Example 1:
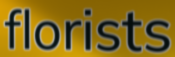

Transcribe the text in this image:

florists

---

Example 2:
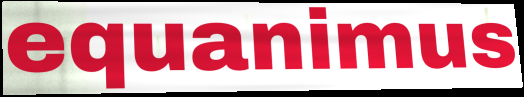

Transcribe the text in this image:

equanimus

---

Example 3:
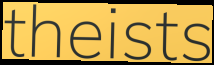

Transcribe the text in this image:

theists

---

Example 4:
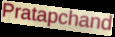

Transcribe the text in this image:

Pratapchand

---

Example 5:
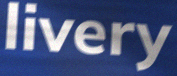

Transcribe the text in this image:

livery